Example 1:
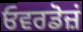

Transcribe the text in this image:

ਓਵਰਡੋਜ਼ਂ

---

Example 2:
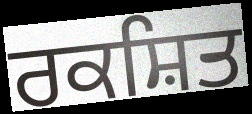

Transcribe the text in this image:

ਰਕਸ਼ਿਤ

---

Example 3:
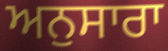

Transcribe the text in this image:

ਅਨੁਸਾਰਾ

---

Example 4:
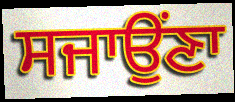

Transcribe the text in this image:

ਸਜਾਉਂਣਾ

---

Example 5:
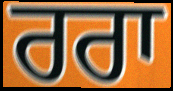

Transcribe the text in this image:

ਰਰਾ